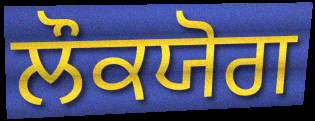
ਲੌਕਯੋਗ